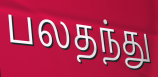
பலதந்து